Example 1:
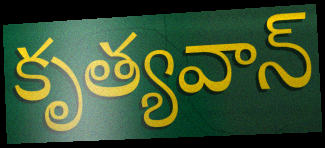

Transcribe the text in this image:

కృత్యవాన్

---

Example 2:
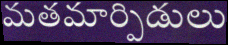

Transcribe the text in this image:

మతమార్పిడులు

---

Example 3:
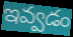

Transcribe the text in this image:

ఇవ్వడం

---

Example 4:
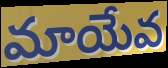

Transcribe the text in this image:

మాయేవ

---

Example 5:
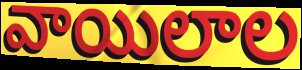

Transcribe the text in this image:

వాయిలాల